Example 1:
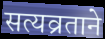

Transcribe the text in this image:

सत्यव्रताने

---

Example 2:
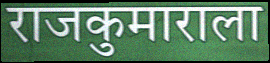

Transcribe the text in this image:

राजकुमाराला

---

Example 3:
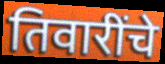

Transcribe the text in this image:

तिवारींचे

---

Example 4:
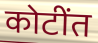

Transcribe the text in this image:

कोटींत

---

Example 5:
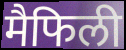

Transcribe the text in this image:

मैफिली